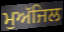
ਮੁਅੱਜਿਲ